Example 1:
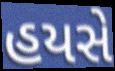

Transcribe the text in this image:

હયસે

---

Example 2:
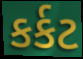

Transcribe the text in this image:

કર્કટ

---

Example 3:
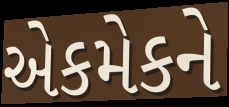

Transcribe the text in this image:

એકમેકને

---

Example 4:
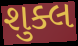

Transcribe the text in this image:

શુક્લ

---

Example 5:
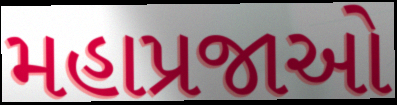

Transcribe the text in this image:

મહાપ્રજાઓ